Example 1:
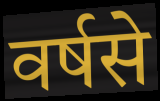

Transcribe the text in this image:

वर्षसे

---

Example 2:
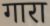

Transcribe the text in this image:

गारा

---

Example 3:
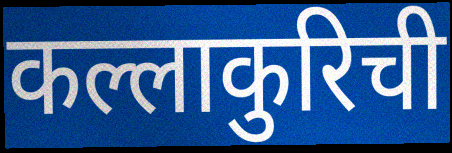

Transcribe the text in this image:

कल्लाकुरिची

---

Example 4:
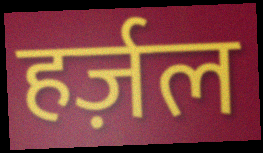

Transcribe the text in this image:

हर्ज़ल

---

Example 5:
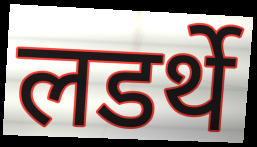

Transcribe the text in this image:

लडर्थे